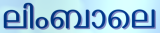
ലിംബാലെ